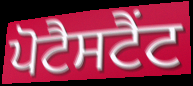
ਪੋਟੈਸਟੈਂਟ